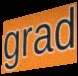
grad